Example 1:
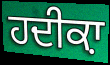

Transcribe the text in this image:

ਹਦੀਕ਼ਾ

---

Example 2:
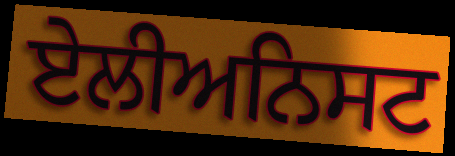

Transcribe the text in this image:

ਏਲੀਅਨਿਸਟ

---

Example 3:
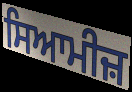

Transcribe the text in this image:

ਸਿਆਮੀਜ਼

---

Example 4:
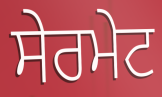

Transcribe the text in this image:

ਸੇਰਮੇਟ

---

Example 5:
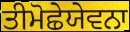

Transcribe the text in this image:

ਤੀਮੋਛੇਯੇਵਨਾ